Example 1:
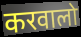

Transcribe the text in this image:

करवालो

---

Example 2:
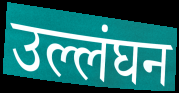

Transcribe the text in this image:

उल्लंघन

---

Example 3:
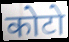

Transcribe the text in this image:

कोटो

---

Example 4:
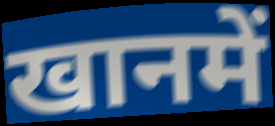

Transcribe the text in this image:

खानमें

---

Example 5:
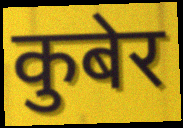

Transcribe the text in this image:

कुबेर